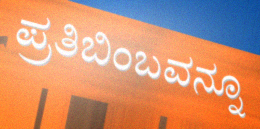
ಪ್ರತಿಬಿಂಬವನ್ನೂ